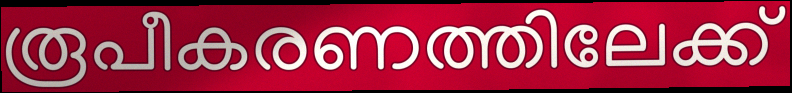
രൂപീകരണത്തിലേക്ക്